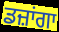
ਡਜ਼ਾਂਗਾ